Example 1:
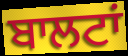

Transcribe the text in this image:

ਬਾਲਟਾਂ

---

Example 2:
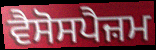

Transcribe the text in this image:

ਵੈਸੋਸਪੈਜ਼ਮ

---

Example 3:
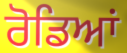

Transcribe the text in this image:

ਰੋਡਿਆਂ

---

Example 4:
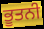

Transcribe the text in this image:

ਭੂਤਨੀ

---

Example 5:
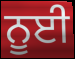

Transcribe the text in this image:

ਨੂਈ